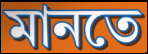
মানতে